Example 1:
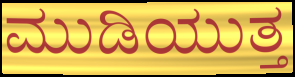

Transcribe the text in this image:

ಮುಡಿಯುತ್ತ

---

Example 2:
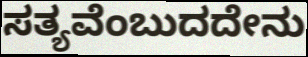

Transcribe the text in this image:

ಸತ್ಯವೆಂಬುದದೇನು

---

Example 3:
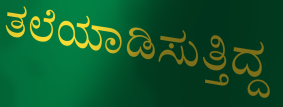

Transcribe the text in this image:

ತಲೆಯಾಡಿಸುತ್ತಿದ್ದ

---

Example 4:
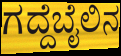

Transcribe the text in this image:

ಗದ್ದೆಬೈಲಿನ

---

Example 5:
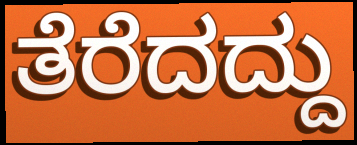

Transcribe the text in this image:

ತೆರೆದದ್ದು